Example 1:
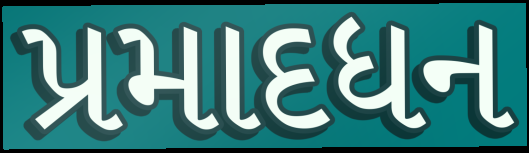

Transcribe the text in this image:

પ્રમાદધન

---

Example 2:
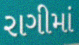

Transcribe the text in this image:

રાગીમાં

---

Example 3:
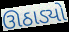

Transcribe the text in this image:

ઊઠાડ્યો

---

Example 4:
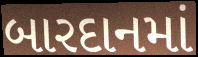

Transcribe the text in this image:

બારદાનમાં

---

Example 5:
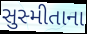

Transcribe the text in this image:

સુસ્મીતાના